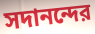
সদানন্দের